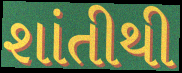
શાંતીથી